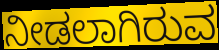
ನೀಡಲಾಗಿರುವ